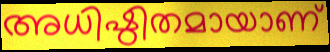
അധിഷ്ഠിതമായാണ്